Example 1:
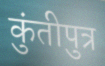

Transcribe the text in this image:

कुंतीपुत्र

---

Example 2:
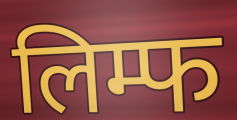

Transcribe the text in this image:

लिम्फ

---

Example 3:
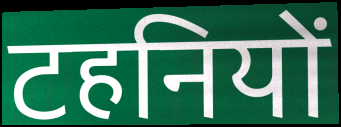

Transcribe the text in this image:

टहनियों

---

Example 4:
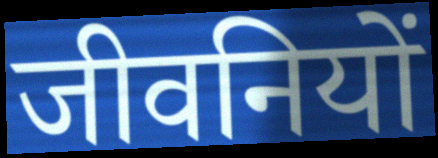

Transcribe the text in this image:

जीवनियों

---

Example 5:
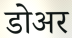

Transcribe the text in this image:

डोअर